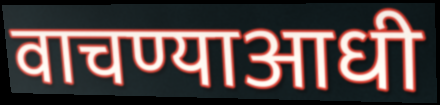
वाचण्याआधी